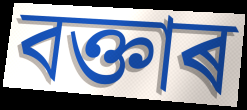
বক্তাৰ